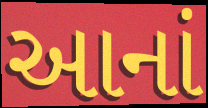
આનાં